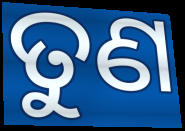
ତୁଣ